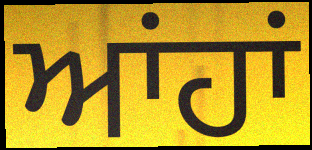
ਆਂਹਾਂ